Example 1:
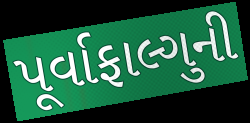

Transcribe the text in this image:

પૂર્વાફાલ્ગુની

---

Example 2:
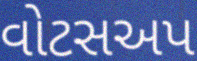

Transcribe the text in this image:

વોટસઅપ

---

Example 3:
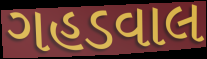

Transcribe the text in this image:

ગહડવાલ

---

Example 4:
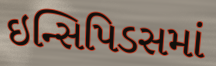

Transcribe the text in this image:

ઇન્સિપિડસમાં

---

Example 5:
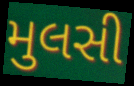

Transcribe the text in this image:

મુલસી